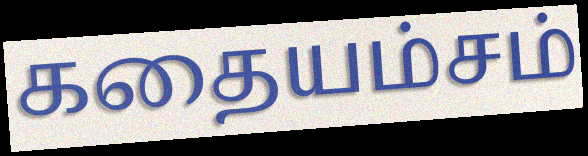
கதையம்சம்